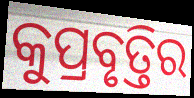
କୁପ୍ରବୃତ୍ତିର